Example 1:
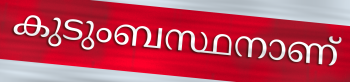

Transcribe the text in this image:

കുടുംബസ്ഥനാണ്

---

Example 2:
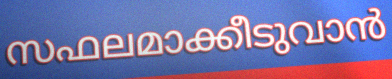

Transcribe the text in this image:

സഫലമാക്കീടുവാൻ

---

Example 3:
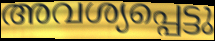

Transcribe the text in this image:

അവശ്യപ്പെട്ടു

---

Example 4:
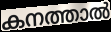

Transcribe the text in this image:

കനത്താൽ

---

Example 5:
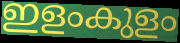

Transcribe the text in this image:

ഇളംകുളം